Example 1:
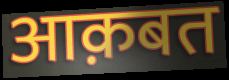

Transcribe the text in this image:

आक़बत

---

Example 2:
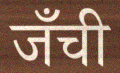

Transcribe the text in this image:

जँची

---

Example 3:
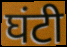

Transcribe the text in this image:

घंटी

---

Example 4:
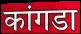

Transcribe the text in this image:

कांगडा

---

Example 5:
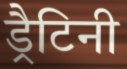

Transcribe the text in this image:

ड्रैटिनी